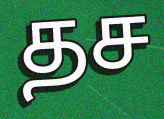
தச